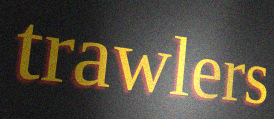
trawlers